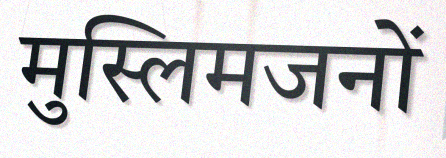
मुस्लिमजनों